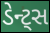
ડેન્ટ્સ